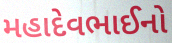
મહાદેવભાઈનો